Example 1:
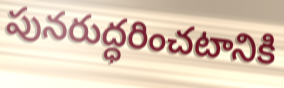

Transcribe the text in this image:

పునరుద్ధరించటానికి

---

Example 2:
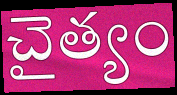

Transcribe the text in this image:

చైత్యం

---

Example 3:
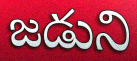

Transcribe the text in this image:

జడుని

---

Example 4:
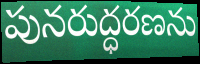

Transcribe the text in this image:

పునరుద్ధరణను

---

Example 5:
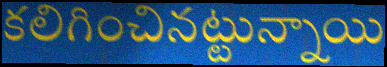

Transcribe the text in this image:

కలిగించినట్టున్నాయి